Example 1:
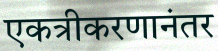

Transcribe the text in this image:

एकत्रीकरणानंतर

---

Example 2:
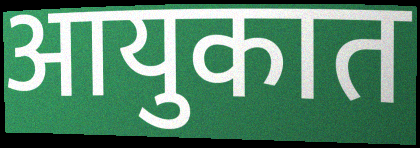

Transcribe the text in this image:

आयुकात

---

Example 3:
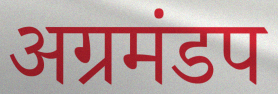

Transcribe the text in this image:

अग्रमंडप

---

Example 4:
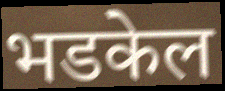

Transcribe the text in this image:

भडकेल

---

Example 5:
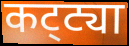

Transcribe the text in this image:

कट्ट्या